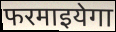
फरमाइयेगा